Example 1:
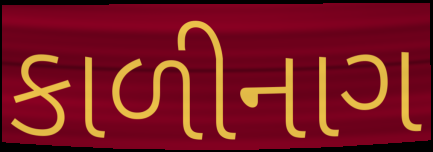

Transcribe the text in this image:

કાળીનાગ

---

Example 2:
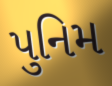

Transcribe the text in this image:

પુનિમ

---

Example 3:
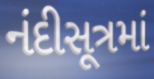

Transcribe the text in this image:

નંદીસૂત્રમાં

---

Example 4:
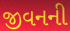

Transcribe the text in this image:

જીવનની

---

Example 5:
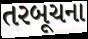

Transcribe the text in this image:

તરબૂચના